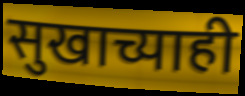
सुखाच्याही